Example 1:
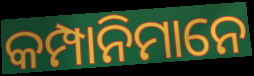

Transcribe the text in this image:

କମ୍ପାନିମାନେ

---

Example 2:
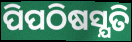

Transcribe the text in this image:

ପିପଠିଷସ୍ଯତି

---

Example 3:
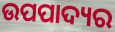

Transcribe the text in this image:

ଉପପାଦ୍ୟର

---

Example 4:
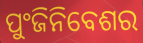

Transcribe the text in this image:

ପୁଂଜିନିବେଶର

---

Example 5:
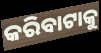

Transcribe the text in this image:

କରିବାଟାକୁ